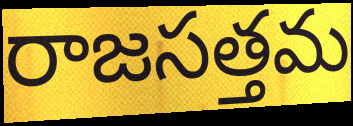
రాజసత్తమ